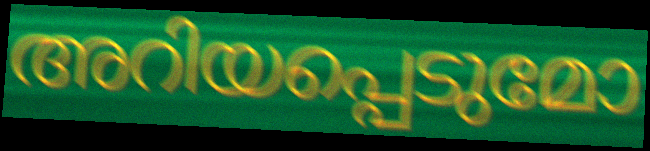
അറിയപ്പെടുമോ